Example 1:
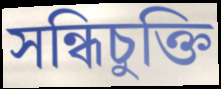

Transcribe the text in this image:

সন্ধিচুক্তি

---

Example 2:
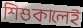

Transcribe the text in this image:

শিশুকালেই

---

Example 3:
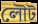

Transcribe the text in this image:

লৌট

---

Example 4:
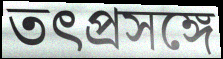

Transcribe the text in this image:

তৎপ্রসঙ্গে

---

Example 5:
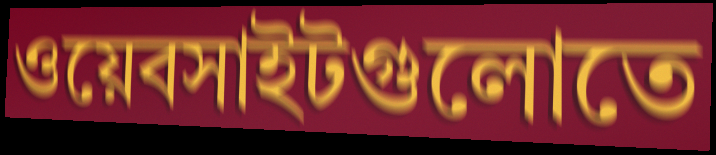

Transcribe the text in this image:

ওয়েবসাইটগুলোতে